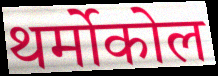
थर्मोकोल